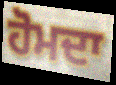
ਹੋਮਦਾ